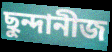
ছুন্দানীজ